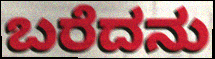
ಬರೆದನು